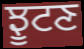
ਝੂਟਣ